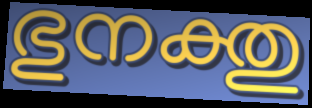
ഭുനക്തു